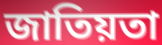
জাতিয়তা